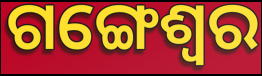
ଗଙ୍ଗେଶ୍ଵର